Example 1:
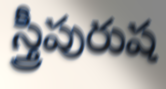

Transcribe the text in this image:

స్త్రీపురుష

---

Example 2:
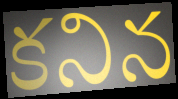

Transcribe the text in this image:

కనిన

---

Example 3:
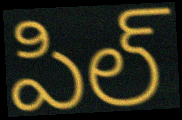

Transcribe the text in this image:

పిల్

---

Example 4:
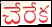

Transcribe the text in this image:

చేరేక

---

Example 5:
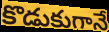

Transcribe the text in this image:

కొడుకుగానే